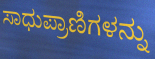
ಸಾಧುಪ್ರಾಣಿಗಳನ್ನು